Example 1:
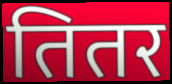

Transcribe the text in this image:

तितर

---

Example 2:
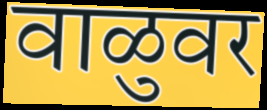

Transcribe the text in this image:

वाळुवर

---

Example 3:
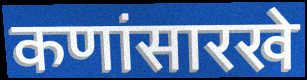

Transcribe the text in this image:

कणांसारखे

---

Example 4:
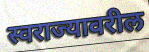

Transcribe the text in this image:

स्वराज्यावरील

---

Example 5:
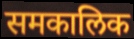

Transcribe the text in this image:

समकालिक